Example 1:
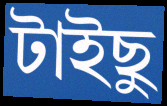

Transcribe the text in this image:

টাইছু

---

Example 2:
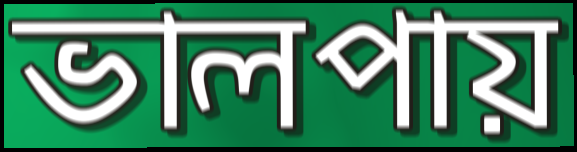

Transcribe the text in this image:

ভালপায়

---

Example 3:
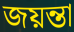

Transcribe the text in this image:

জয়ন্তা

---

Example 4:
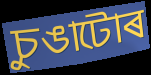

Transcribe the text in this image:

চুঙাটোৰ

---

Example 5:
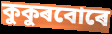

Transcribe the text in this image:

কুকুৰবোৰে